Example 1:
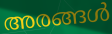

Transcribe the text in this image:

അരങ്ങൾ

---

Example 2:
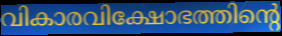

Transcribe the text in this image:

വികാരവിക്ഷോഭത്തിന്റെ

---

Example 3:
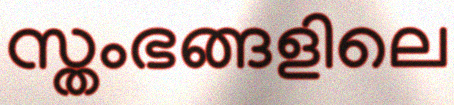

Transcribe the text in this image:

സ്തംഭങ്ങളിലെ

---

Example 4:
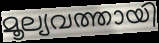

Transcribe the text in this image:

മൂല്യവത്തായി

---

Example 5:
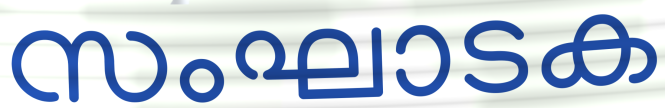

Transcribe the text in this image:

സംഘാടക